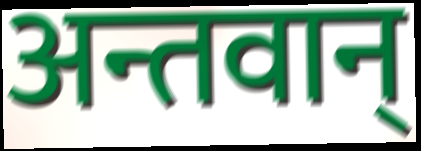
अन्तवान्